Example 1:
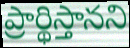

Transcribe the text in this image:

ప్రార్థిస్తానని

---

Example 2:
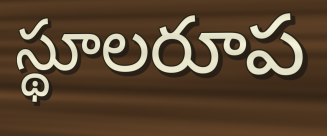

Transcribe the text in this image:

స్థూలరూప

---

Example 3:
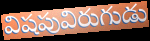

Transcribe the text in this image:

విషపువిరుగుడు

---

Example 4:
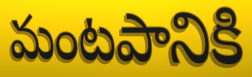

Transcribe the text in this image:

మంటపానికి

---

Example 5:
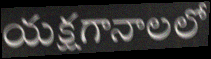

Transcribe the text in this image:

యక్షగానాలలో